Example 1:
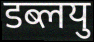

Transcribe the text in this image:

डब्लयु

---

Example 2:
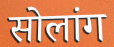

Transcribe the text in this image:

सोलांग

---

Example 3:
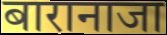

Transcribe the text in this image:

बारानाजा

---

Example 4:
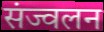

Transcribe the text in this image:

संज्वलन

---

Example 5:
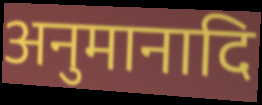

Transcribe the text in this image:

अनुमानादि